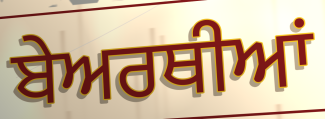
ਬੇਅਰਥੀਆਂ